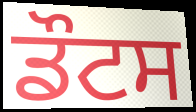
ਡੌਟਸ